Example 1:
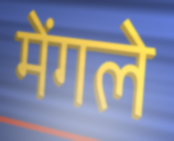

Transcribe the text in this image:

मेंगले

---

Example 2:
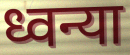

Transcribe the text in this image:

ध्वन्या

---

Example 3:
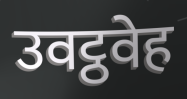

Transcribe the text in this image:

उवट्ठवेह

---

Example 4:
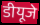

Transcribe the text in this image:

डीयूजे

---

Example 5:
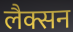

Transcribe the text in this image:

लैक्सन